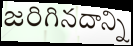
జరిగినదాన్ని